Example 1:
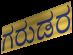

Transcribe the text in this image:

ಗರುಡರ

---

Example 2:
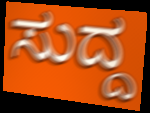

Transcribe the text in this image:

ಸುದ್ದ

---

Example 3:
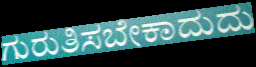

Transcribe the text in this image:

ಗುರುತಿಸಬೇಕಾದುದು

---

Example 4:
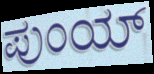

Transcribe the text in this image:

ಪುಂಯ್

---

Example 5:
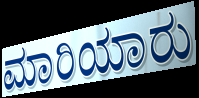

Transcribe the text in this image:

ಮಾರಿಯಾರು